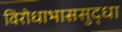
विरोधाभाससुद्धा